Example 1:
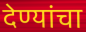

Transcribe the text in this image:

देण्यांचा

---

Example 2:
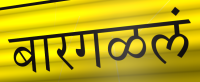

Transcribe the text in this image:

बारगळलं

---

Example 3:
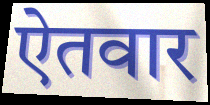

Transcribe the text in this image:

ऐतवार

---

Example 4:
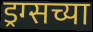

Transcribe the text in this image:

ड्रग्सच्या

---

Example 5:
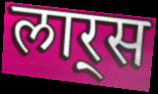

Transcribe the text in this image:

लार्स